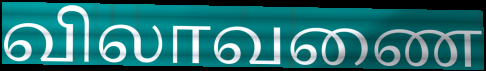
விலாவணை